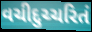
વચીદુચ્ચરિતં